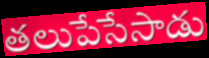
తలుపేసేసాడు